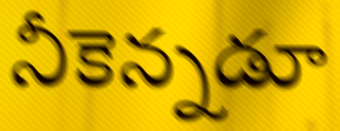
నీకెన్నడూ